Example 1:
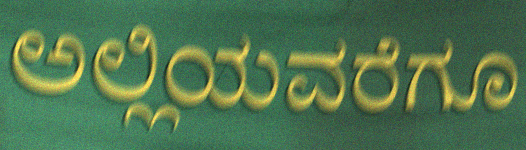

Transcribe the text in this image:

ಅಲ್ಲಿಯವರೆಗೂ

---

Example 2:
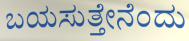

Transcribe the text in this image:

ಬಯಸುತ್ತೇನೆಂದು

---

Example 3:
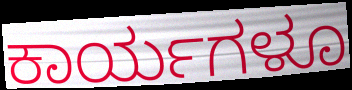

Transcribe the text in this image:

ಕಾರ್ಯಗಳೂ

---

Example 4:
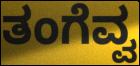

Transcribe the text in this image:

ತಂಗೆವ್ವ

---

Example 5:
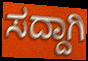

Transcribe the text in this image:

ಸದ್ದಾಗಿ